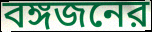
বঙ্গজনের